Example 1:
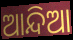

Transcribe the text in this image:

ଆନ୍ଦିଆ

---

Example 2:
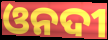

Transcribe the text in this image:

ଓନଦୀ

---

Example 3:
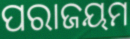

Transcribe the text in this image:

ପରାଜୟମ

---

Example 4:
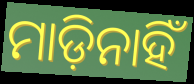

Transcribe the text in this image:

ମାଡ଼ିନାହିଁ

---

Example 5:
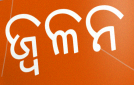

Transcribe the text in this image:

ଜ୍ଵଳନ